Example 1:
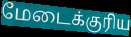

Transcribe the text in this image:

மேடைக்குரிய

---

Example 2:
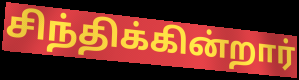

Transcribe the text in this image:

சிந்திக்கின்றார்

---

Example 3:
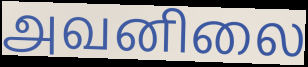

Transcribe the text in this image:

அவனிலை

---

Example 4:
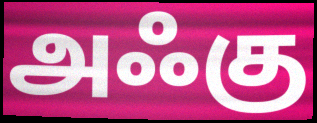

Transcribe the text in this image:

அஃகு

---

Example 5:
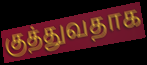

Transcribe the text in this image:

குத்துவதாக